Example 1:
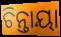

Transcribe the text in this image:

ଚିନ୍ତାୟା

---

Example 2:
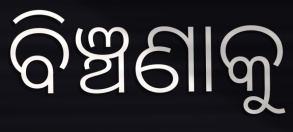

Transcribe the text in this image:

ବିଞ୍ଚଣାକୁ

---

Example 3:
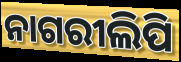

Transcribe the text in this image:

ନାଗରୀଲିପି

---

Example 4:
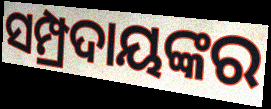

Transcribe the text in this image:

ସମ୍ପ୍ରଦାୟଙ୍କର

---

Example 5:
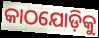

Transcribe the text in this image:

କାଠଯୋଡ଼ିକୁ